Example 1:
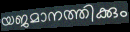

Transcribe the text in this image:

യജമാനത്തിക്കും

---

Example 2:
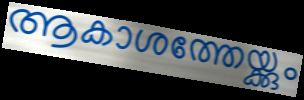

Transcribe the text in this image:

ആകാശത്തേയ്ക്കും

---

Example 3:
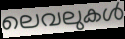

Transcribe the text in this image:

ലെവലുകൾ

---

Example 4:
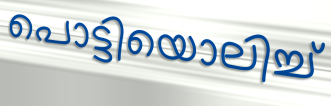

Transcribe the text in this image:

പൊട്ടിയൊലിച്ച്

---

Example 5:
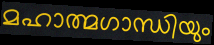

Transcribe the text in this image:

മഹാത്മഗാന്ധിയും